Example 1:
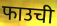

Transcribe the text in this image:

फाउची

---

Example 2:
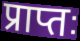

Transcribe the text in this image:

प्राप्तः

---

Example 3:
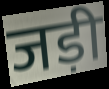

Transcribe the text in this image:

जड़ी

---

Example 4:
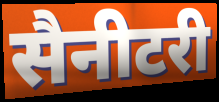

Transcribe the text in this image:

सैनीटरी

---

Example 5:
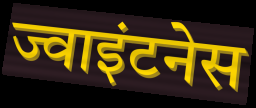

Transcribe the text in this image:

ज्वाइंटनेस